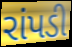
રાંપડી